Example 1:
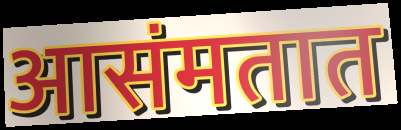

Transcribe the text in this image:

आसंमतात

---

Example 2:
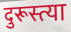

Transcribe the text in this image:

दुरूस्त्या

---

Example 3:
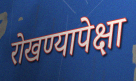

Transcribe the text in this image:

रोखण्यापेक्षा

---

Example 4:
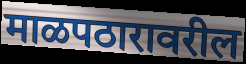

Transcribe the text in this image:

माळपठारावरील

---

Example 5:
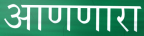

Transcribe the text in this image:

आणणारा